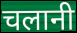
चलानी